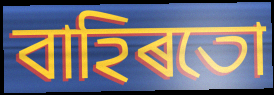
বাহিৰতো